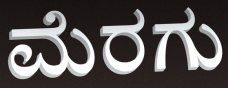
ಮೆರಗು